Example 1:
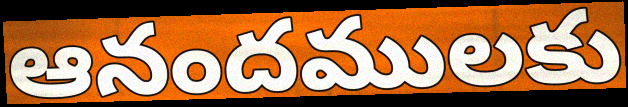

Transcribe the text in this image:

ఆనందములకు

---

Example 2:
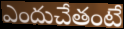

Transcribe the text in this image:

ఎందుచేతంటే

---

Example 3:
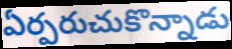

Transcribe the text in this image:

ఏర్పరుచుకొన్నాడు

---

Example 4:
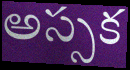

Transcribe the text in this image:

అస్సక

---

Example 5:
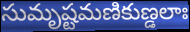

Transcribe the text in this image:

సుమృష్టమణికుణ్డలాః